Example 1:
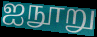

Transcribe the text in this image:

ஐநூறு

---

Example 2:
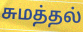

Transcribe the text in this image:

சுமத்தல்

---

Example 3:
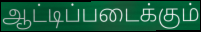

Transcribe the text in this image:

ஆட்டிப்படைக்கும்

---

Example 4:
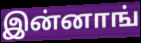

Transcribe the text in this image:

இன்னாங்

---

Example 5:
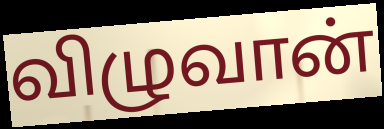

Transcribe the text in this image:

விழுவான்